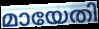
മായേതി